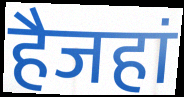
हैजहां